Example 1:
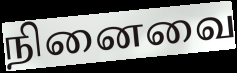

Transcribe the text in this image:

நினைவை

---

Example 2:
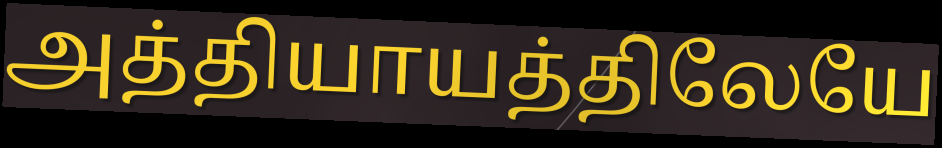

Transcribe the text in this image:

அத்தியாயத்திலேயே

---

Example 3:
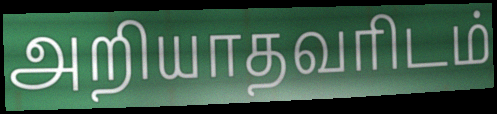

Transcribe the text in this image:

அறியாதவரிடம்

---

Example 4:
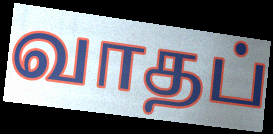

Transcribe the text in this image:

வாதப்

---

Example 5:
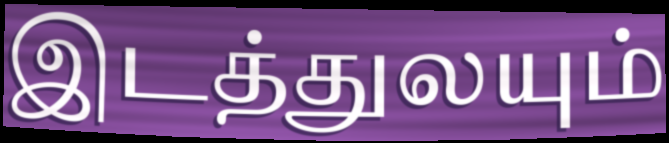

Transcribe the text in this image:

இடத்துலயும்